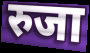
रुजा